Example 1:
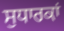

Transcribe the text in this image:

ਸੁਧਾਰਕਾਂ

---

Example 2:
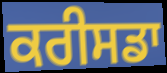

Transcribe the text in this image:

ਕਰੀਸਡਾ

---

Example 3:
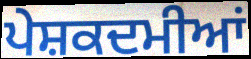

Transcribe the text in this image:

ਪੇਸ਼ਕਦਮੀਆਂ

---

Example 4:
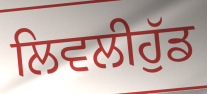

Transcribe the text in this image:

ਲਿਵਲੀਹੁੱਡ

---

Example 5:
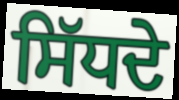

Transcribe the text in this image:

ਸਿੱਧਦੇ